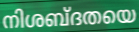
നിശബ്ദതയെ